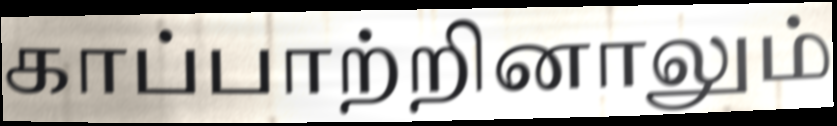
காப்பாற்றினாலும்